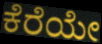
ಕೆರೆಯೇ